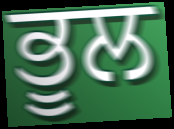
ਭੂਲ